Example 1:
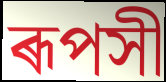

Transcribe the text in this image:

ৰূপসী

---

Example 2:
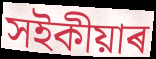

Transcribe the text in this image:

সইকীয়াৰ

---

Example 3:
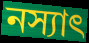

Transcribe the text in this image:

নস্যাৎ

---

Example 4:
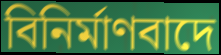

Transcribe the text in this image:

বিনিৰ্মাণবাদে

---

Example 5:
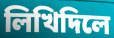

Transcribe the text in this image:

লিখিদিলে